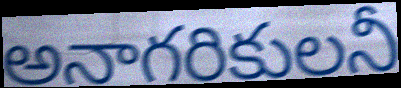
అనాగరికులనీ